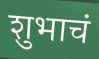
शुभाचं